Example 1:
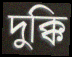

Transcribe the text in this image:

দুক্কি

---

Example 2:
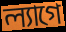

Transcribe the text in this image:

ল্যাগে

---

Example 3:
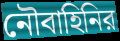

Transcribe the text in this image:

নৌবাহিনির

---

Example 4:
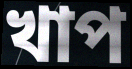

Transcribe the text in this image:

খাপ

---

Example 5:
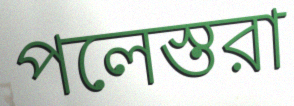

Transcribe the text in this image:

পলেস্তরা